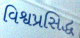
વિશ્વપ્રસિદ્ધ